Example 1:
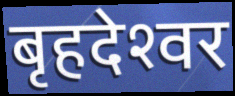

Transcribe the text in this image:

बृहदेश्वर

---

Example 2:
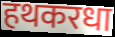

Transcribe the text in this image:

हथकरधा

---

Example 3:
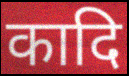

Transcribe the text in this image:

कादि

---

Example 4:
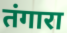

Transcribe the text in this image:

तंगारा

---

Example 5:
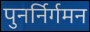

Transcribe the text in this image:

पुनर्निर्गमन